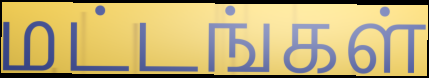
மட்டங்கள்